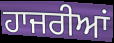
ਹਾਜਰੀਆਂ